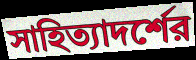
সাহিত্যাদর্শের